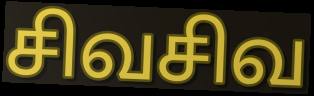
சிவசிவ